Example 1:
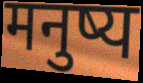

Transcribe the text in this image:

मनुष्य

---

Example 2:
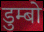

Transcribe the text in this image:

डुम्बो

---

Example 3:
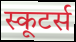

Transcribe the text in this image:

स्कूटर्स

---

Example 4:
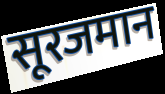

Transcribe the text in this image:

सूरजमान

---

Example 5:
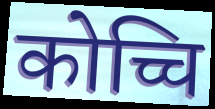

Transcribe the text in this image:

कोच्चि